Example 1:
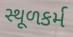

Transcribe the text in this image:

સ્થૂળકર્મ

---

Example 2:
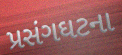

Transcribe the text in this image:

પ્રસંગઘટના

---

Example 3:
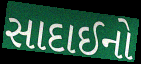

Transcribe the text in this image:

સાદાઈનો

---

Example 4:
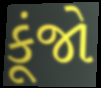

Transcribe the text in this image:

કૂંજો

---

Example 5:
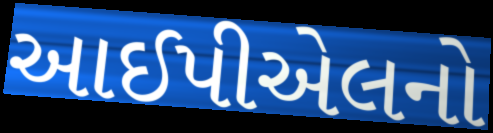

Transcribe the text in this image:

આઈપીએલનો